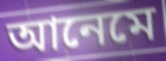
আনেমে